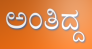
ಅಂತಿದ್ದ